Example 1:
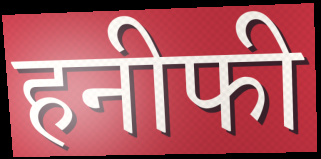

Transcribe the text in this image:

हनीफी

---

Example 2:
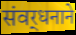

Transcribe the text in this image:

संवर्धनाने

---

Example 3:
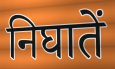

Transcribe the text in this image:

निघातें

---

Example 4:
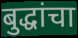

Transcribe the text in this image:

बुद्धांचा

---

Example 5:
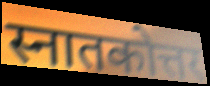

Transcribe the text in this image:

स्नातकोत्तर